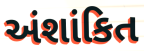
અંશાંકિત